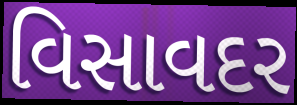
વિસાવદર